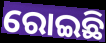
ରୋଇଛି